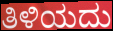
ತಿಳಿಯದು